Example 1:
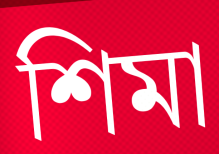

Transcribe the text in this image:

শিমা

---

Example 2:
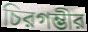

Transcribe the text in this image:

চিরগম্ভীর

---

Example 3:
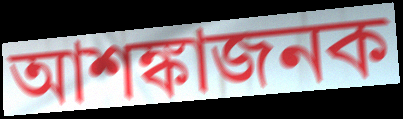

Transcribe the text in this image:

আশঙ্কাজনক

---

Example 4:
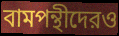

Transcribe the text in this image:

বামপন্থীদেরও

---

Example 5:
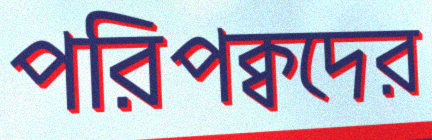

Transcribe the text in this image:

পরিপক্বদের